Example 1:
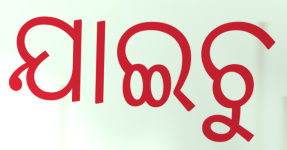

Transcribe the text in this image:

ଯାଇଚୁ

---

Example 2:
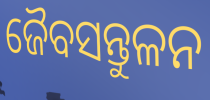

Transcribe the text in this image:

ଜୈବସନ୍ତୁଳନ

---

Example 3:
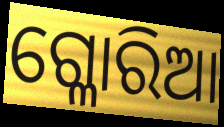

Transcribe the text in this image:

ଗ୍ଳୋରିଆ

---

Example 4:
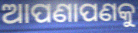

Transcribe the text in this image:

ଆପଣାପଣକୁ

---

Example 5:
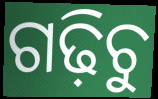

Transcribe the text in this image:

ଗଢ଼ିଚୁ